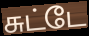
சுட்டே